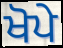
ਖੋਪੇ